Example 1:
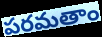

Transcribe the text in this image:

పరమతాం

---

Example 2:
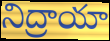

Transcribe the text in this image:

నిద్రాయా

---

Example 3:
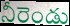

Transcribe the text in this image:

నీరెండు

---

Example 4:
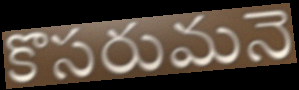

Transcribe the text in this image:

కొసరుమనె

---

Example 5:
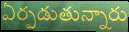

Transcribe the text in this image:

ఏర్పడుతున్నారు